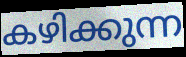
കഴിക്കുന്ന